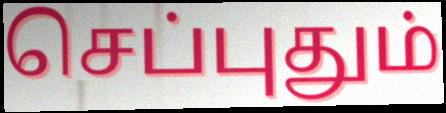
செப்புதும்